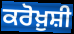
ਕਰੋਖ਼ੁਸ਼ੀ